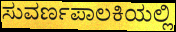
ಸುವರ್ಣಪಾಲಕಿಯಲ್ಲಿ